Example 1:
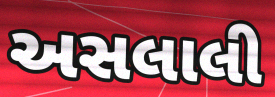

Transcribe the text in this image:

અસલાલી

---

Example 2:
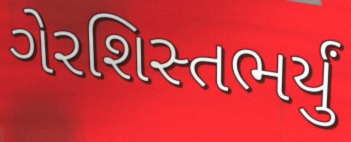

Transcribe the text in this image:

ગેરશિસ્તભર્યું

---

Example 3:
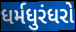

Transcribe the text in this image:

ધર્મધુરંધરો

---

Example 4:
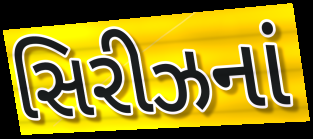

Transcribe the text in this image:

સિરીઝનાં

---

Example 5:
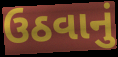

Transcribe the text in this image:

ઉઠવાનું